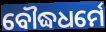
ବୌଦ୍ଧଧର୍ମେ